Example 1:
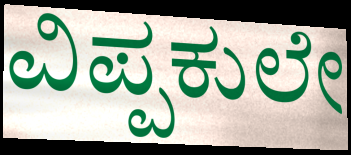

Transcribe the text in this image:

ವಿಪ್ಪಕುಲೇ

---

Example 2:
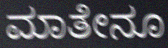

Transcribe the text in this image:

ಮಾತೇನೂ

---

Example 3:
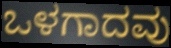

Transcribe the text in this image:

ಒಳಗಾದವು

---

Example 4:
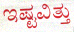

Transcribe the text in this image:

ಇಷ್ಟವಿತ್ತು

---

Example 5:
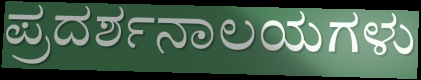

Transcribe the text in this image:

ಪ್ರದರ್ಶನಾಲಯಗಳು